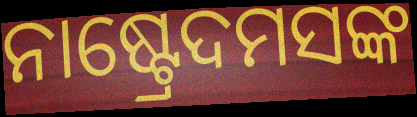
ନାଷ୍ଟ୍ରେଦମସଙ୍କ